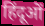
हिंदूओं